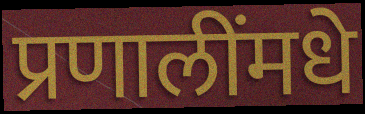
प्रणालींमधे